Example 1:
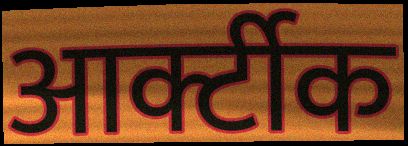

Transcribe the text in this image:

आर्क्टीक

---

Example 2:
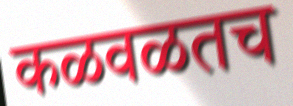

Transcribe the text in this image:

कळवळतच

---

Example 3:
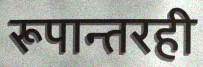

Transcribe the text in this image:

रूपान्तरही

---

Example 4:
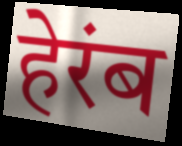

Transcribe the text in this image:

हेरंब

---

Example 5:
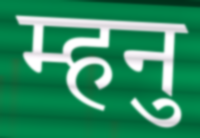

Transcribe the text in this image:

म्हनु